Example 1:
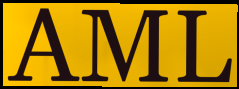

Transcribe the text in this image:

AML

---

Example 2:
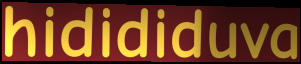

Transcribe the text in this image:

hidididuva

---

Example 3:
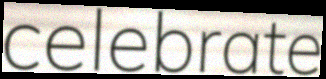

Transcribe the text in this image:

celebrate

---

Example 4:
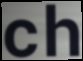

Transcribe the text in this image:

ch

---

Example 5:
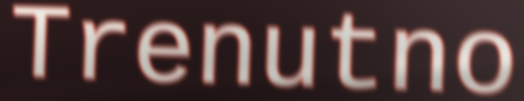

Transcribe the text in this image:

Trenutno